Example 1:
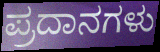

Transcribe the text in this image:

ಪ್ರದಾನಗಳು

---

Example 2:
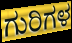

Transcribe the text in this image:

ಗುರಿಗಳ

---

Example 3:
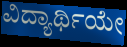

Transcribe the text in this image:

ವಿದ್ಯಾರ್ಥಿಯೇ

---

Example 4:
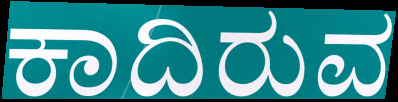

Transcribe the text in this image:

ಕಾದಿರುವ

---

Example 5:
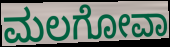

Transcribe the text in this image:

ಮಲಗೋವಾ